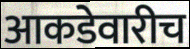
आकडेवारीच